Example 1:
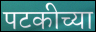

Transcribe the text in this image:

पटकीच्या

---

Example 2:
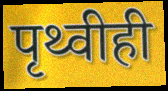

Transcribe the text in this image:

पृथ्वीही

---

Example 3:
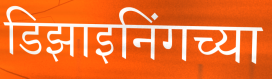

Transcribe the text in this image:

डिझाइनिंगच्या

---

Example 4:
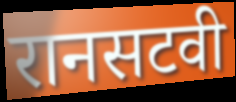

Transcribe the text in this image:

रानसटवी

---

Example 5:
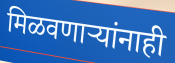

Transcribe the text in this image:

मिळवणाऱ्यांनाही